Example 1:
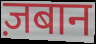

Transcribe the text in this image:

ज़बान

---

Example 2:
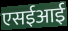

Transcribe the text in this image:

एसईआई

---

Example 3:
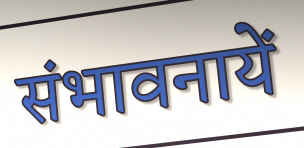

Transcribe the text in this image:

संभावनायें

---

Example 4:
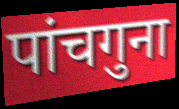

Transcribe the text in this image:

पांचगुना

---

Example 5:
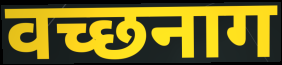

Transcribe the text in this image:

वच्छनाग